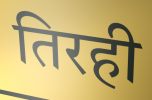
तिरही